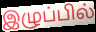
இழுப்பில்